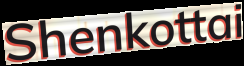
Shenkottai